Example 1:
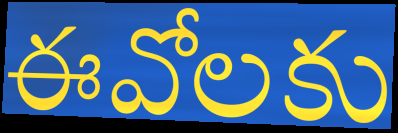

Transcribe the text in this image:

ఈవోలకు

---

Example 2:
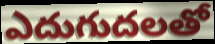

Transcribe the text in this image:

ఎదుగుదలతో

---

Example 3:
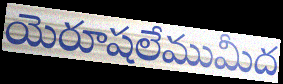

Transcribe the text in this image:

యెరూషలేముమీద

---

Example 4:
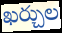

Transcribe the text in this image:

ఖర్చుల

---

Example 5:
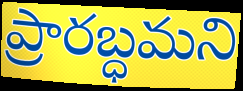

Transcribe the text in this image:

ప్రారబ్ధమని